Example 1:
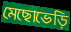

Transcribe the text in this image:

মেছোভেড়ি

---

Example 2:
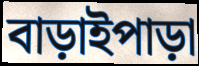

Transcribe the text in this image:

বাড়াইপাড়া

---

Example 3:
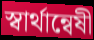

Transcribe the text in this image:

স্বার্থান্বেষী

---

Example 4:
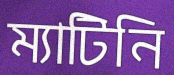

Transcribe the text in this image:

ম্যাটিনি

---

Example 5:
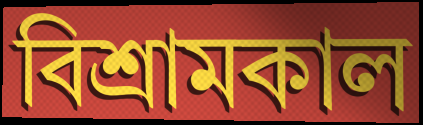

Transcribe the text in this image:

বিশ্রামকাল